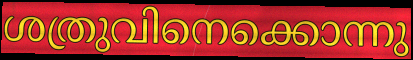
ശത്രുവിനെക്കൊന്നു